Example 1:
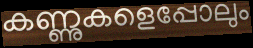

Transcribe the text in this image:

കണ്ണുകളെപ്പോലും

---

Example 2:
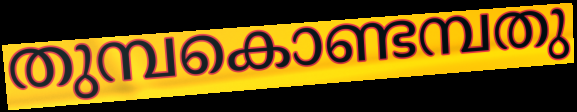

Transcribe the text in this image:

തുമ്പകൊണ്ടമ്പതു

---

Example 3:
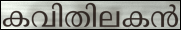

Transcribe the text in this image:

കവിതിലകൻ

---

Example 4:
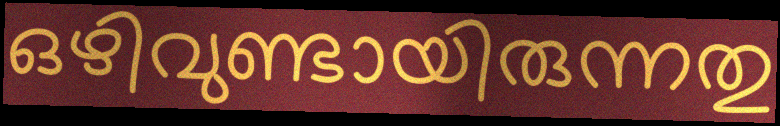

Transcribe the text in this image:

ഒഴിവുണ്ടായിരുന്നതു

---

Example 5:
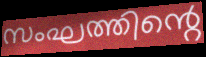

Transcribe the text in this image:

സംഘത്തിന്റെ